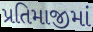
પ્રતિમાજીમાં